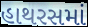
હાથરસમાં